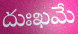
దుఃఖమే